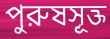
পুৰুষসূক্ত